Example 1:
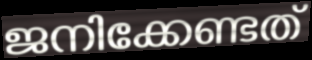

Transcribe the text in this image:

ജനിക്കേണ്ടത്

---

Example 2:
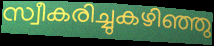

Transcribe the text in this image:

സ്വീകരിച്ചുകഴിഞ്ഞു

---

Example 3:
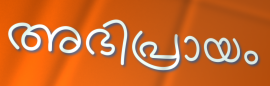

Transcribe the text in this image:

അഭിപ്രായം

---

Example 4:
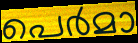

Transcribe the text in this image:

പെർമാ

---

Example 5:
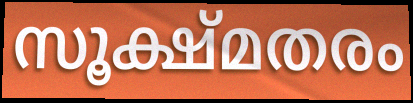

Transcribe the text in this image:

സൂക്ഷ്മതരം